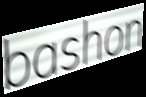
bashon